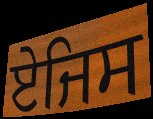
ਏਜਿਸ